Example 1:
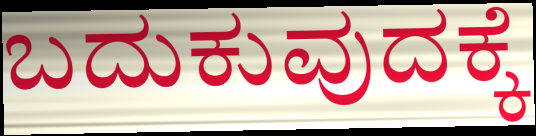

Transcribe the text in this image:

ಬದುಕುವುದಕ್ಕೆ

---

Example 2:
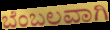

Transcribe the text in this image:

ಬೆಂಬಲವಾಗಿ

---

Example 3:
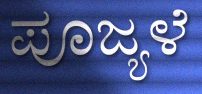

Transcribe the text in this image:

ಪೂಜ್ಯಳೆ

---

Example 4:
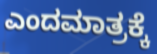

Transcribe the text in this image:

ಎಂದಮಾತ್ರಕ್ಕೆ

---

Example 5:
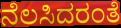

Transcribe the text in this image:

ನೆಲಸಿದರಂತೆ